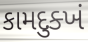
કામદુક્ખં